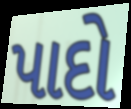
પાદો